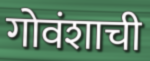
गोवंशाची